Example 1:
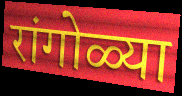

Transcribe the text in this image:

रांगोळ्या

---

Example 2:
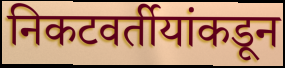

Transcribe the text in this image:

निकटवर्तीयांकडून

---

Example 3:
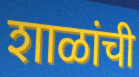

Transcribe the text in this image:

शाळांची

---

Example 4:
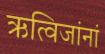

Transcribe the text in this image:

ऋत्विजांनां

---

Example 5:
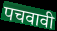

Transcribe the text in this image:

पचवावी